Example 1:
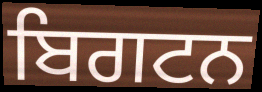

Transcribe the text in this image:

ਬਿਗਟਨ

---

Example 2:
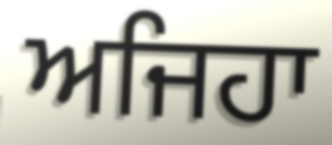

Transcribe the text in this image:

ਅਜਿਹਾ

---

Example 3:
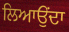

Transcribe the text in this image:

ਲਿਆਉਂਦਾ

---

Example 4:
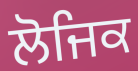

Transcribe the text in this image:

ਲੋਜਿਕ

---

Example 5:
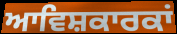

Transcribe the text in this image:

ਆਵਿਸ਼ਕਾਰਕਾਂ